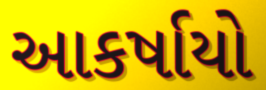
આકર્ષાયો